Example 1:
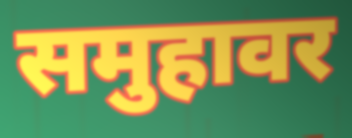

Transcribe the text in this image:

समुहावर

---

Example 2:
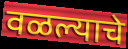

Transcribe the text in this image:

वळल्याचे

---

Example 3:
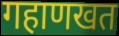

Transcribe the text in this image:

गहाणखत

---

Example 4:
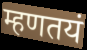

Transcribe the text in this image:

म्हणतयं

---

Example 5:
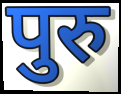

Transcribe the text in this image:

पुरु